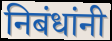
निबंधांनी